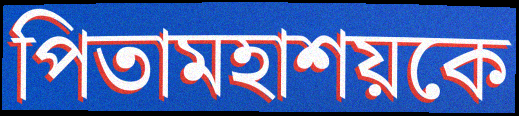
পিতামহাশয়কে